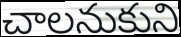
చాలనుకుని